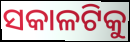
ସକାଳଟିକୁ